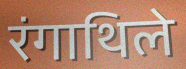
रंगाथिले